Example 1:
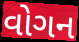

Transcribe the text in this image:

વોગન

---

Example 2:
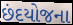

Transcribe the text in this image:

છંદયોજના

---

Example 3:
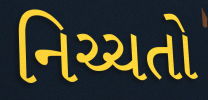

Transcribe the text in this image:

નિચ્ચતો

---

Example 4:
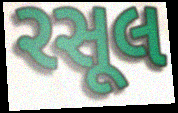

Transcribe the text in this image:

રસૂલ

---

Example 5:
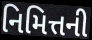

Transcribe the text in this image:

નિમિત્તની